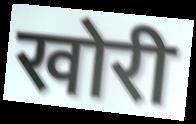
खोरी